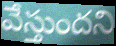
వేస్తుందని